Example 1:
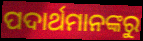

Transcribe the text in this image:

ପଦାର୍ଥମାନଙ୍କରୁ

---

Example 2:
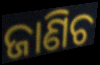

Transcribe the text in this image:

ଜାଣିଚ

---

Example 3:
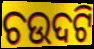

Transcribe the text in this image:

ଚଉଦଟି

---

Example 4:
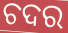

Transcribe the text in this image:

ଚଦର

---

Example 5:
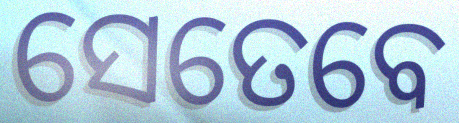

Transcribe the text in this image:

ସେତେବେ